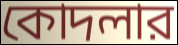
কোদলার